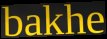
bakhe